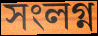
সংলগ্ন